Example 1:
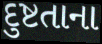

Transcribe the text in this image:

દુષ્ટતાના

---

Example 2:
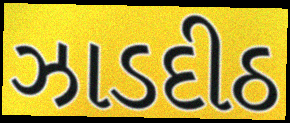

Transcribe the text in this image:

ઝાડદીઠ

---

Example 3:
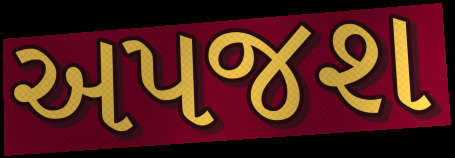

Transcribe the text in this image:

અપજશ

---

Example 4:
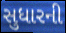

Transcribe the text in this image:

સુધારની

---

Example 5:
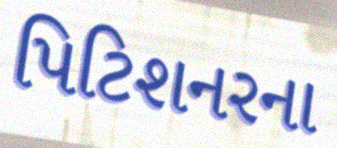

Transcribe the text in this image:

પિટિશનરના